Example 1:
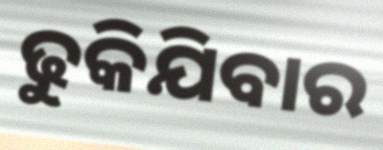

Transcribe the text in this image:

ଢୁକିଯିବାର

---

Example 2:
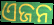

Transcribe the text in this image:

ଏଜନ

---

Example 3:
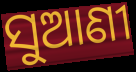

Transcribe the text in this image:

ସୁଆଣୀ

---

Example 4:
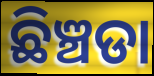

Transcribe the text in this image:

ଛିଞ୍ଚଡା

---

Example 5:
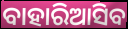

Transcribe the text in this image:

ବାହାରିଆସିବ